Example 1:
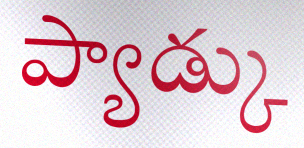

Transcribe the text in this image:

ప్యాడ్కు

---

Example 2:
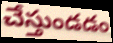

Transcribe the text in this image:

చేస్తుండడం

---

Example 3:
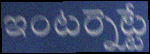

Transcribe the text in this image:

ఇంటర్నెట్టే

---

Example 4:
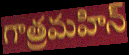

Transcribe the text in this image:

గాత్రమహిన్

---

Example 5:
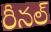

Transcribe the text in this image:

రీనల్